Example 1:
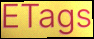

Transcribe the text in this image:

ETags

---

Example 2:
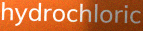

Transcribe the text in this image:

hydrochloric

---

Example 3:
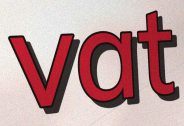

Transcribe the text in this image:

vat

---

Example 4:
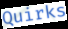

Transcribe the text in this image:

Quirks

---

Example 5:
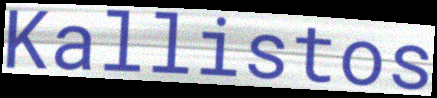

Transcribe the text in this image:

Kallistos